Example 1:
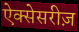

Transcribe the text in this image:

ऐक्सेसरीज़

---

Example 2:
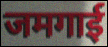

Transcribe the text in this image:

जमगाई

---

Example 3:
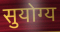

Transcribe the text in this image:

सुयोग्य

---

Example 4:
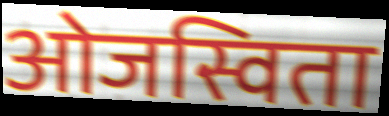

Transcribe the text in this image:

ओजस्विता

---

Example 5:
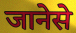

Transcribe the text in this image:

जानेसे